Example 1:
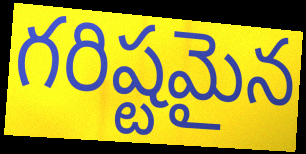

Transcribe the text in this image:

గరిష్టమైన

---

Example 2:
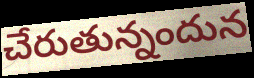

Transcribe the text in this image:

చేరుతున్నందున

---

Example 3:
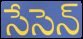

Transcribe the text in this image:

సేసెన్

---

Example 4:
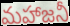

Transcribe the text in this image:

మహాజనీ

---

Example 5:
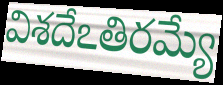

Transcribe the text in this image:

విశదేఽతిరమ్యే